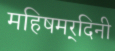
महिषमर्दिनी